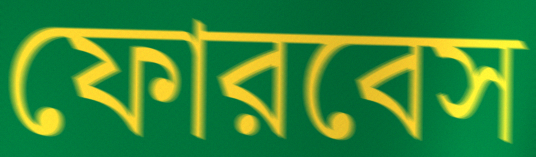
ফোরবেস